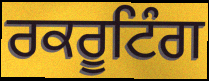
ਰਕਰੂਟਿੰਗ